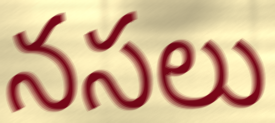
నసలు